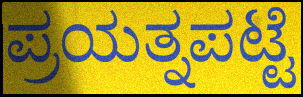
ಪ್ರಯತ್ನಪಟ್ಟೆ